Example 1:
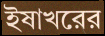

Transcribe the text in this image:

ইষাখরের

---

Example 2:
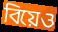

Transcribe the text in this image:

বিয়েও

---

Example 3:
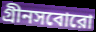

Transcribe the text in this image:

গ্রীনসবোরো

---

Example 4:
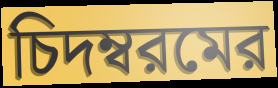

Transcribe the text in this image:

চিদম্বরমের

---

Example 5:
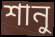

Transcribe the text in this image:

শানু